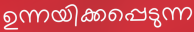
ഉന്നയിക്കപ്പെടുന്ന